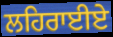
ਲਹਿਰਾਈਏ